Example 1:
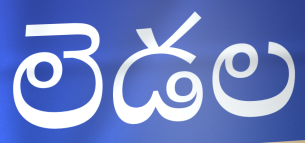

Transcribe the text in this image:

లెడల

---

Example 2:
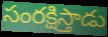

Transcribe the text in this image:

సంరక్షిస్తాడు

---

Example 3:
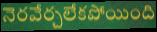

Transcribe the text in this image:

నెరవేర్చలేకపోయింది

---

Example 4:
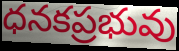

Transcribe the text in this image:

ధనకప్రభువు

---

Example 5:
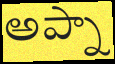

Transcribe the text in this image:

అప్నా